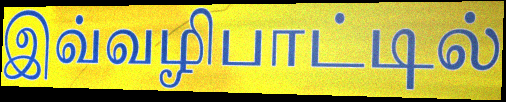
இவ்வழிபாட்டில்